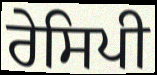
ਰੇਸਿਪੀ